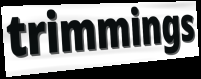
trimmings